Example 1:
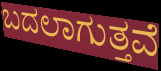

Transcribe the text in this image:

ಬದಲಾಗುತ್ತವೆ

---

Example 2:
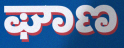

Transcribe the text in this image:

ಘಾಣ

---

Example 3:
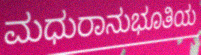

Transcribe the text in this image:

ಮಧುರಾನುಭೂತಿಯ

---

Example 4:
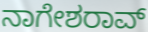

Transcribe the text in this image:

ನಾಗೇಶರಾವ್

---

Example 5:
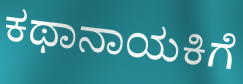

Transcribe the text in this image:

ಕಥಾನಾಯಕಿಗೆ